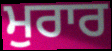
ਮੁਰਾਰ